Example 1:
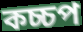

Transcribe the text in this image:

কচ্চপ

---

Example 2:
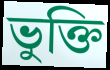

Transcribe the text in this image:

ভুক্তি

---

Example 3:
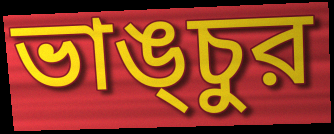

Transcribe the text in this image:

ভাঙ্চুর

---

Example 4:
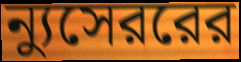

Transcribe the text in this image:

ন্যুসেররের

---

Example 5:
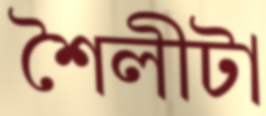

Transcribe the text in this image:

শৈলীটা